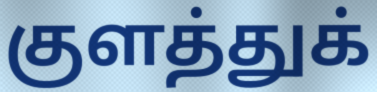
குளத்துக்